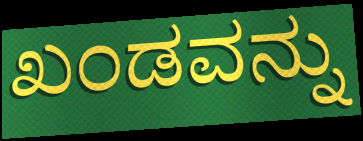
ಖಂಡವನ್ನು